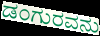
ಡಂಗುರವನು